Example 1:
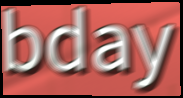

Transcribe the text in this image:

bday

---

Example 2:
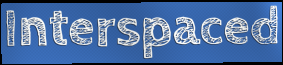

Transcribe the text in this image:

Interspaced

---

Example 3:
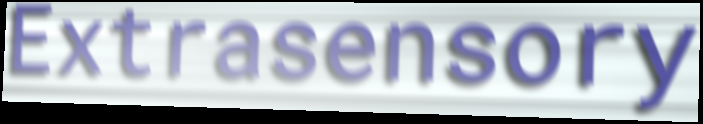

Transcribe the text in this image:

Extrasensory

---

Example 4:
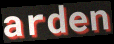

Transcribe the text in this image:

arden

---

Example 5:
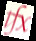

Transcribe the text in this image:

tfx